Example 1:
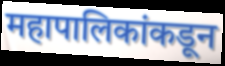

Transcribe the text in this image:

महापालिकांकडून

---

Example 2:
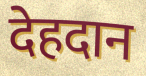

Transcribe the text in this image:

देहदान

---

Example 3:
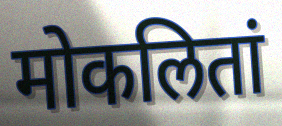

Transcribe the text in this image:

मोकलितां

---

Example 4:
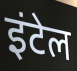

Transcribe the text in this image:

इंटेल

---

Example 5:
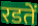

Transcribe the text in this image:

रडतें